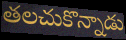
తలచుకొన్నాడు